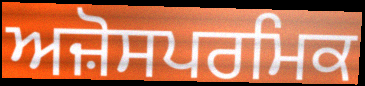
ਅਜ਼ੋਸਪਰਮਿਕ